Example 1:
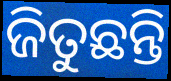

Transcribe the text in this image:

ଜିତୁଛନ୍ତି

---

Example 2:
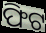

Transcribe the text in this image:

ଫିଟ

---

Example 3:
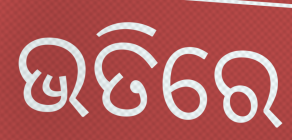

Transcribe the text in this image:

ଭତିରେ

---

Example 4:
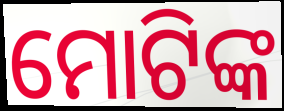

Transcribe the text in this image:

ମୋଟିଙ୍କ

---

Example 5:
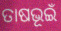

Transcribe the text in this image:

ତାଷଭୂଇଁ